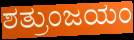
ಶತ್ರುಂಜಯಂ